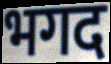
भगद